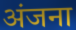
अंजना